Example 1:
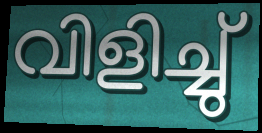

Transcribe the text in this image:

വിളിച്ചു്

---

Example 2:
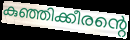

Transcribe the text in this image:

കുഞ്ഞിക്കീരന്റെ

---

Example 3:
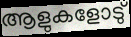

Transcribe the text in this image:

ആളുകളോടു്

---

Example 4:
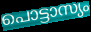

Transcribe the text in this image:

പൊട്ടാസ്യം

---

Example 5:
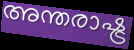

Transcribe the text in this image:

അന്തരാഷ്ട്ര